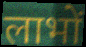
लाभों